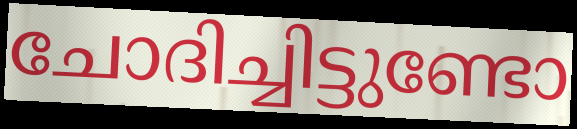
ചോദിച്ചിട്ടുണ്ടോ